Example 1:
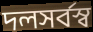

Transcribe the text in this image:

দলসর্বস্ব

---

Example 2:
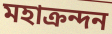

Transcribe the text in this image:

মহাক্রন্দন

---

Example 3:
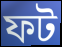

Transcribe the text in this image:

ফট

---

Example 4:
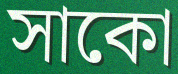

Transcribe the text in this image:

সাকো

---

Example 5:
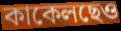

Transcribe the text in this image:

কাকেলছেও